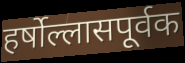
हर्षोल्लासपूर्वक